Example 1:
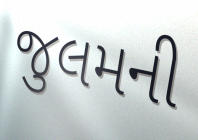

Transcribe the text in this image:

જુલમની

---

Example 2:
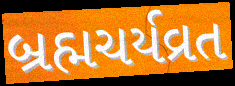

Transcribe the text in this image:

બ્રહ્મચર્યવ્રત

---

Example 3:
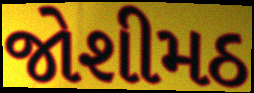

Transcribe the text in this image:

જોશીમઠ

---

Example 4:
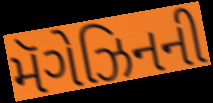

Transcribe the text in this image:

મૅગેઝિનની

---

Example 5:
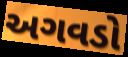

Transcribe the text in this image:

અગવડો